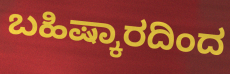
ಬಹಿಷ್ಕಾರದಿಂದ